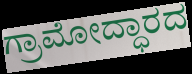
ಗ್ರಾಮೋದ್ಧಾರದ